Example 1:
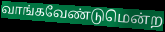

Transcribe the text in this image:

வாங்கவேண்டுமென்ற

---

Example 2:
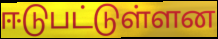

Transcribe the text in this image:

ஈடுபட்டுள்ளன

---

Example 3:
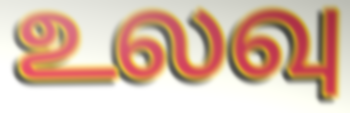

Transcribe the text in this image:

உலவு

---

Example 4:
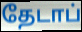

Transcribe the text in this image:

தேடாப்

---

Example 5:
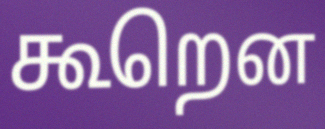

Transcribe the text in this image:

கூறென